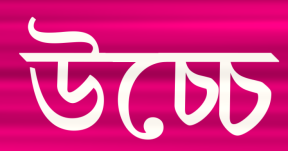
উচ্চে